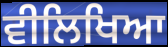
ਵੀਲਿਖਿਆ